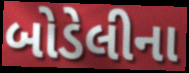
બોડેલીના